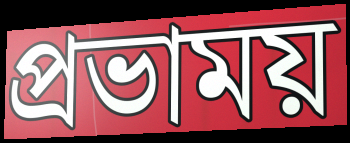
প্রভাময়